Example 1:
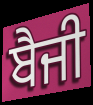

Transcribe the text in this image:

ਬੈਜੀ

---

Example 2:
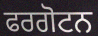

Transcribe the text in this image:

ਫਰਗੋਟਨ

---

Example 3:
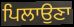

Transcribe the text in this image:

ਪਿਲਾਉਣਾ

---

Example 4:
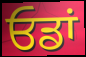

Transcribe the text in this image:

ਓਡਾਂ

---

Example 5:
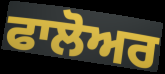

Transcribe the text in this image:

ਫਾਲੋਅਰ